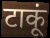
टाकूं